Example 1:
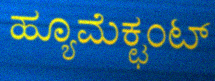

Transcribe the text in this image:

ಹ್ಯೂಮೆಕ್ಟಂಟ್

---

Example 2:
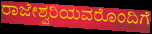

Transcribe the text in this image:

ರಾಜೇಶ್ವರಿಯವರೊಂದಿಗೆ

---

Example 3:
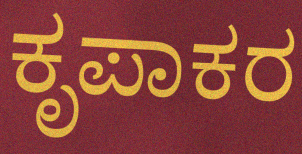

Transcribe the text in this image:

ಕೃಪಾಕರ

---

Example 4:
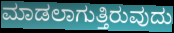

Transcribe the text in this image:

ಮಾಡಲಾಗುತ್ತಿರುವುದು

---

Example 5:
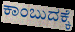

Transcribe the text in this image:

ಕಾಂಬುದಕ್ಕೆ